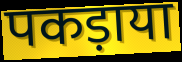
पकड़ाया